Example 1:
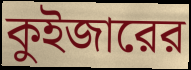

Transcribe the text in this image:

কুইজারের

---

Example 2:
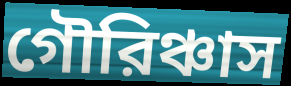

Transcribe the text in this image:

গৌরিঞ্চাস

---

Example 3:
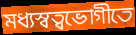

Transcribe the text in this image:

মধ্যস্বত্বভোগীতে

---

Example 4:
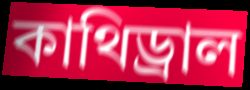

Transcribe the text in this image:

কাথিড্রাল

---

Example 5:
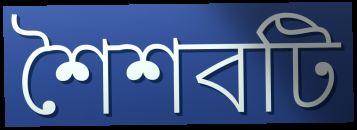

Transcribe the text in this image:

শৈশবটি